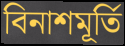
বিনাশমূর্তি